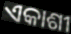
ଏକାଶୀ